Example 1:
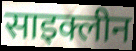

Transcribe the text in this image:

साइक्लीन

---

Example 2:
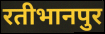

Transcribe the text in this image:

रतीभानपुर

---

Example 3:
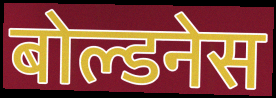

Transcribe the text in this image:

बोल्डनेस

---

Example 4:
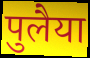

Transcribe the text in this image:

पुलैया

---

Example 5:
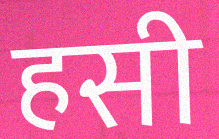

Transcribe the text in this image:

हसी